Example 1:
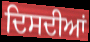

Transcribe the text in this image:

ਦਿਸਦੀਆਂ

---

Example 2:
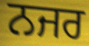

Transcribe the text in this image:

ਨਜਰ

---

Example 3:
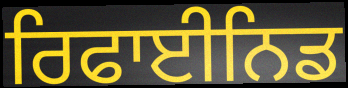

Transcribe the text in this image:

ਰਿਫਾਈਨਿਡ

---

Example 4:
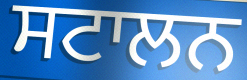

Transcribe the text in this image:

ਸਟਾਲਨ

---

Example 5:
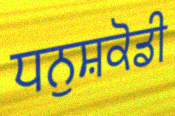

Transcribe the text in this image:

ਧਨੁਸ਼ਕੋਡੀ